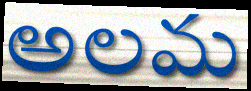
అలమ